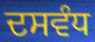
ਦਸਵੰਧ